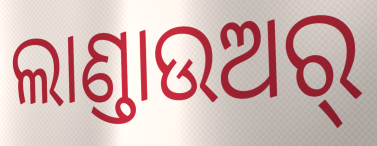
ଲାଣ୍ଡାଉଅର୍